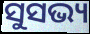
ସୁସଭ୍ୟ